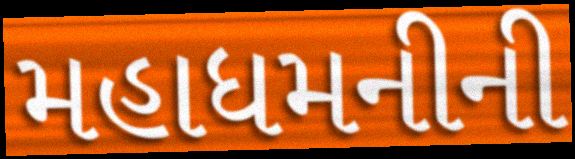
મહાધમનીની